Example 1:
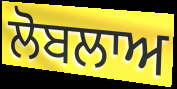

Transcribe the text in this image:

ਲੋਬਲਾਅ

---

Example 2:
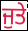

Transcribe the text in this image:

ਜੁਤੇ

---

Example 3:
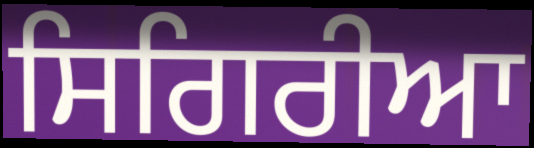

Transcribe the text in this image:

ਸਿਗਿਰੀਆ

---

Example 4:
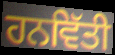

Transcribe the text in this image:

ਹਨਵਿੱਤੀ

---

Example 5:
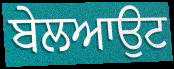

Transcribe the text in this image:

ਬੇਲਆਉਟ